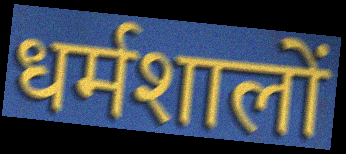
धर्मशालों